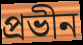
প্রভীন